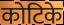
कोटिके